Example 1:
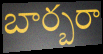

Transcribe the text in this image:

బార్బరా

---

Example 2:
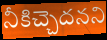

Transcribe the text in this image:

నీకిచ్చెదనని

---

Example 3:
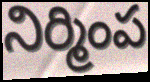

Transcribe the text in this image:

నిర్మింప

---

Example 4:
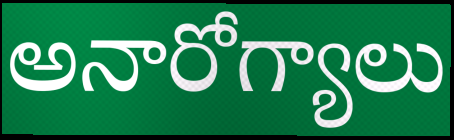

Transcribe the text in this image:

అనారోగ్యాలు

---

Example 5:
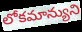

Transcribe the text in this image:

లోకమాన్యుని